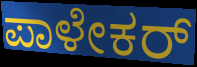
ಪಾಳೇಕರ್